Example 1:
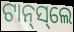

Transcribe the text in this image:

ଟାନ୍‌ସ୍‌ଲେ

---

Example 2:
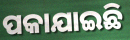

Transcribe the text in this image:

ପକାଯାଇଛି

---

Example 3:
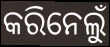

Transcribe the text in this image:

କରିନେଲୁଁ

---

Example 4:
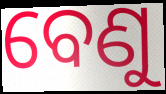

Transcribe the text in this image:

ବେଣୁ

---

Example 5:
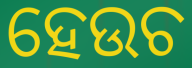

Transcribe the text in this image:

ହେଉଚ